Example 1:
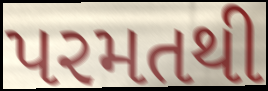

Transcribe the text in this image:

પરમતથી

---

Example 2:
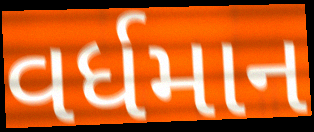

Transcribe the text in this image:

વર્ધમાન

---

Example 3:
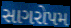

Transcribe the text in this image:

સાગરોપમ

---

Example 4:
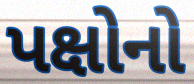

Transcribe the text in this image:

પક્ષોનો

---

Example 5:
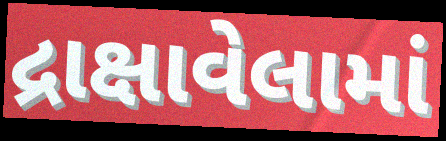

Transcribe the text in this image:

દ્રાક્ષાવેલામાં